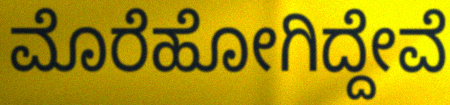
ಮೊರೆಹೋಗಿದ್ದೇವೆ